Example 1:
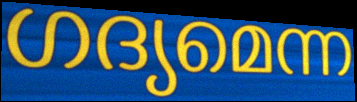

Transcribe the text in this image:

ഗദ്യമെന്ന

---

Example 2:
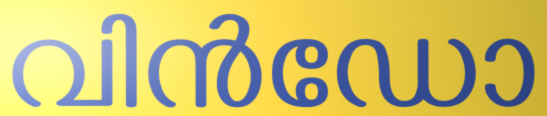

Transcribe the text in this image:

വിൻഡോ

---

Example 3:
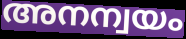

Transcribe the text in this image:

അനന്വയം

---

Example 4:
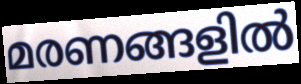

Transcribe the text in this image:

മരണങ്ങളിൽ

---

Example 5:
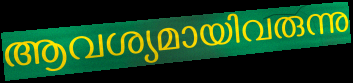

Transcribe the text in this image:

ആവശ്യമായിവരുന്നു